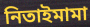
নিতাইমামা